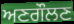
ਅਣਗੌਲਣ